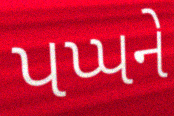
પપ્પને